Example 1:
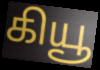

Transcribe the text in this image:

கியூ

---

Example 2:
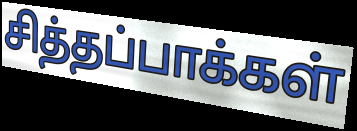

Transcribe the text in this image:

சித்தப்பாக்கள்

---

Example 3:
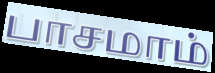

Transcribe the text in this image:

பாசமாம்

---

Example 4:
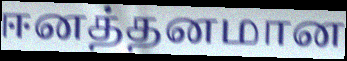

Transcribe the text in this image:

ஈனத்தனமான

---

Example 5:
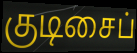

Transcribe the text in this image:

குடிசைப்